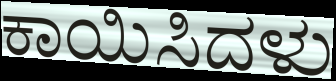
ಕಾಯಿಸಿದಳು